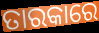
ତାରକାରେ